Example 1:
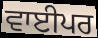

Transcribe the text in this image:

ਵਾਈਪਰ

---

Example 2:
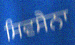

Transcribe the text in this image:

ਸਿਵਸੈਨਾ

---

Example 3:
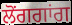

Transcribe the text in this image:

ਲੋਂਗਗਾਂਗ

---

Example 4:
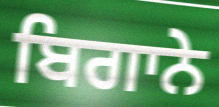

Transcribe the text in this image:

ਬਿਗਾਨੇ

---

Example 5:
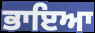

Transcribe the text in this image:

ਭਾਇਆ